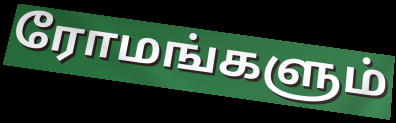
ரோமங்களும்